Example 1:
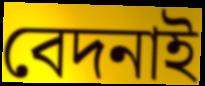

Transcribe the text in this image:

বেদনাই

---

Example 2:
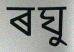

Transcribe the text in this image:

ৰঘু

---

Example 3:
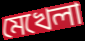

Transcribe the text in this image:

মেখেলা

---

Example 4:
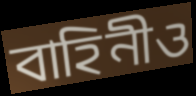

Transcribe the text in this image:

বাহিনীও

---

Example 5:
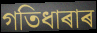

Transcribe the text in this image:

গতিধাৰাৰ